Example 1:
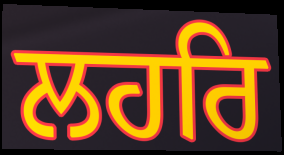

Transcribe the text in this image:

ਲਹਰਿ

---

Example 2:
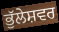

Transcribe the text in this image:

ਭੁੱਲੇਸ਼ਵਰ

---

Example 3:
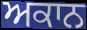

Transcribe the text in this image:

ਅਕਾਨ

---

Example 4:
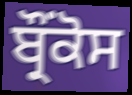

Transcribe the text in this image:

ਬ੍ਰੌਂਕੋਸ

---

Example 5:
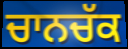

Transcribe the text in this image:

ਚਾਨਚੱਕ